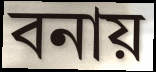
বনায়